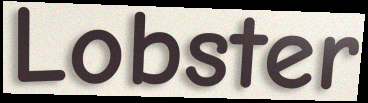
Lobster